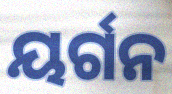
ୟର୍ଗନ